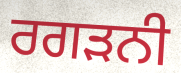
ਰਗੜਨੀ